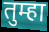
तुम्हा